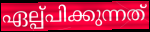
ഏല്പ്പിക്കുന്നത്